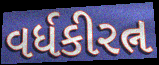
વર્ધકીરત્ન